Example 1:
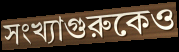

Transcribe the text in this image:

সংখ্যাগুরুকেও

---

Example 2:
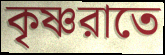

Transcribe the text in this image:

কৃষ্ণরাতে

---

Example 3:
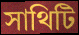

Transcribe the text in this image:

সাথিটি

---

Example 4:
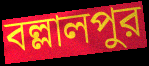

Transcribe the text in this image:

বল্লালপুর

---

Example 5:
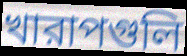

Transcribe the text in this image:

খারাপগুলি